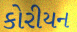
કોરીયન